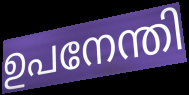
ഉപനേന്തി